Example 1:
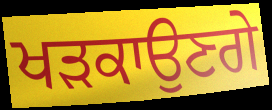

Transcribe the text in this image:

ਖੜਕਾਉਣਗੇ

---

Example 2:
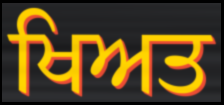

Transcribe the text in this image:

ਖਿਅਤ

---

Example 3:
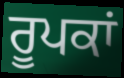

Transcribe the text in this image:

ਰੂਪਕਾਂ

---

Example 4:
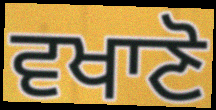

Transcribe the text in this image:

ਵਖਾਣੋ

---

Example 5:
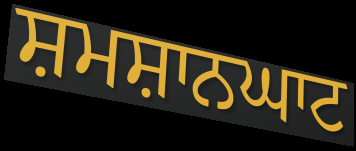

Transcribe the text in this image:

ਸ਼ਮਸ਼ਾਨਘਾਟ